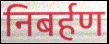
निबर्हण